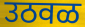
उठवळ